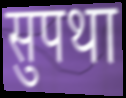
सुपथा